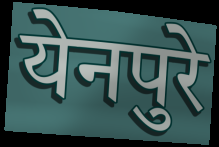
येनपुरे